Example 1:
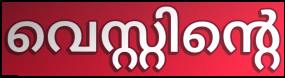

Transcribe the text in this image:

വെസ്റ്റിന്റെ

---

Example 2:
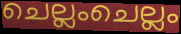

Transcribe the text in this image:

ചെല്ലംചെല്ലം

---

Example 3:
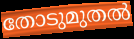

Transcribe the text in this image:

തോടുമുതൽ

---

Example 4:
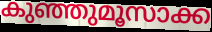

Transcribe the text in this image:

കുഞ്ഞുമൂസാക്ക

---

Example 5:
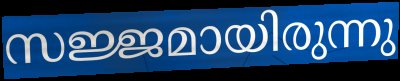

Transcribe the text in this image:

സജ്ജമായിരുന്നു